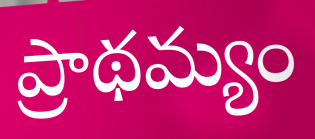
ప్రాథమ్యం